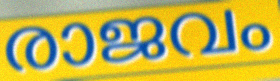
രാജവം